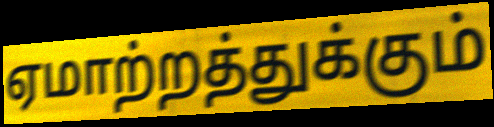
ஏமாற்றத்துக்கும்